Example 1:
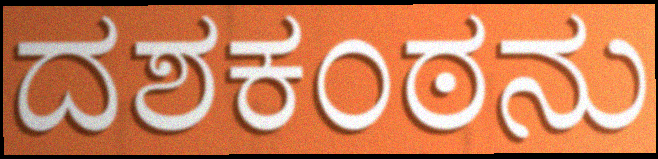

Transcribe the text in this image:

ದಶಕಂಠನು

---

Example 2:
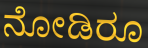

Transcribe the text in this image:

ನೋಡಿರೂ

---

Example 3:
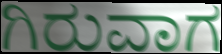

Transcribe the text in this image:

ಗಿರುವಾಗ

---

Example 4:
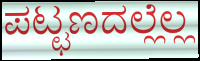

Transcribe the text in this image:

ಪಟ್ಟಣದಲ್ಲೆಲ್ಲ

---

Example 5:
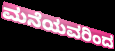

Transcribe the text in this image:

ಮನೆಯವರಿಂದ